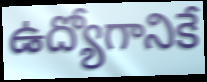
ఉద్యోగానికే